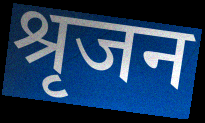
श्रृजन